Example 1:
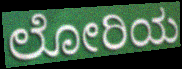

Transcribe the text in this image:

ಲೋರಿಯ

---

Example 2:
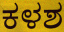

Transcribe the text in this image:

ಕಳಶ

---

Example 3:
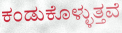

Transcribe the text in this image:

ಕಂಡುಕೊಳ್ಳುತ್ತವೆ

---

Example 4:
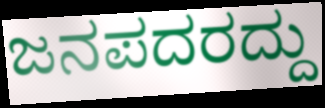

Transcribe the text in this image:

ಜನಪದರದ್ದು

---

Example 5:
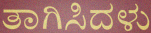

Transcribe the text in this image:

ತಾಗಿಸಿದಳು